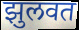
झुलवत